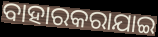
ବାହାରକରାଯାଇ